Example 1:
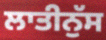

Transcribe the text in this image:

ਲਾਤੀਨੁੱਸ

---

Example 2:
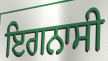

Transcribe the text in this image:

ਇਗਨਾਸੀ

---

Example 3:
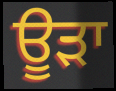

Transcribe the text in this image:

ਊੜਾ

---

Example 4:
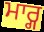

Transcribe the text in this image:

ਮਾਰ੍ਗ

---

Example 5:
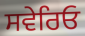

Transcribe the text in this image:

ਸਵੇਰਿਓ